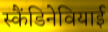
स्कैंडिनेवियाई